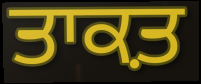
ਤਾਕ਼ਤ